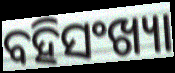
ବହିସଂଖ୍ୟା